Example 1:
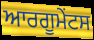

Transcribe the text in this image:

ਆਰਗੂਮੇੰਟਸ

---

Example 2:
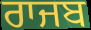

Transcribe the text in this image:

ਰਾਜਬ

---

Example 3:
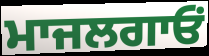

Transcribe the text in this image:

ਮਾਜਲਗਾਓਂ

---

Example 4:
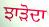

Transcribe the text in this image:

ਝਾੜੋਦਾ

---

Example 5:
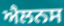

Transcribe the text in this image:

ਐਲਨਸ